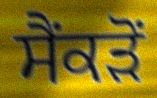
ਸੈਂਕੜੋਂ